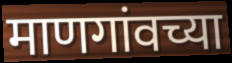
माणगांवच्या